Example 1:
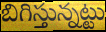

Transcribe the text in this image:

బిగిస్తున్నట్టు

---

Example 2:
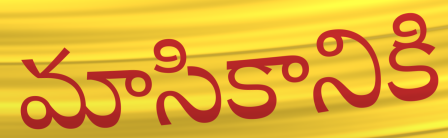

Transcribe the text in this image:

మాసికానికి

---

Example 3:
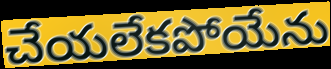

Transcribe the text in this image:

చేయలేకపోయేను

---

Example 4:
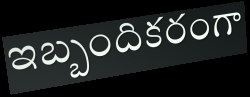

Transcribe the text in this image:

ఇబ్బందికరంగా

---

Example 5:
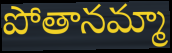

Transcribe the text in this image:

పోతానమ్మా